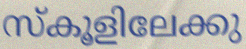
സ്കൂളിലേക്കു